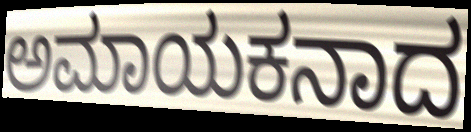
ಅಮಾಯಕನಾದ